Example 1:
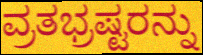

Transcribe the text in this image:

ವ್ರತಭ್ರಷ್ಟರನ್ನು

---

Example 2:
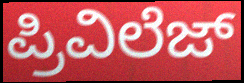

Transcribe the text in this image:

ಪ್ರಿವಿಲೆಜ್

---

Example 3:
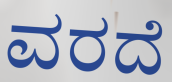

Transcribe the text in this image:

ವರದೆ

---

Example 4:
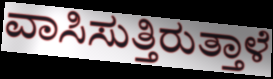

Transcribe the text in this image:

ವಾಸಿಸುತ್ತಿರುತ್ತಾಳೆ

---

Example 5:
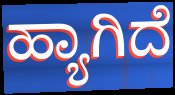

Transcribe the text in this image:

ಹ್ಯಾಗಿದೆ